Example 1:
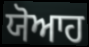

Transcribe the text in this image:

ਯੋਆਹ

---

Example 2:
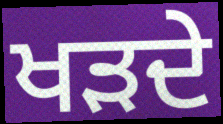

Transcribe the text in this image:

ਖੜਦੇ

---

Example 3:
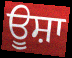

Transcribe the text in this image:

ਊਸ਼ਾ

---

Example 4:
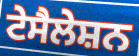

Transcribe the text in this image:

ਟੇਸੈਲੇਸ਼ਨ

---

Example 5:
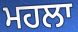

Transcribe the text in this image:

ਮਹਲਾ